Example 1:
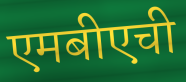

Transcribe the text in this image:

एमबीएची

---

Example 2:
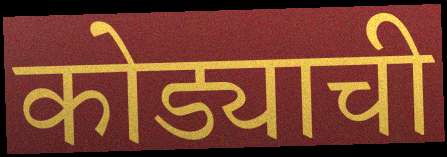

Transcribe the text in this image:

कोड्याची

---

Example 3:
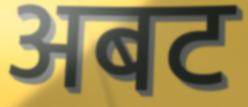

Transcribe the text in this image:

अबट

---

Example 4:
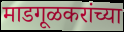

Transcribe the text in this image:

माडगूळकरांच्या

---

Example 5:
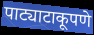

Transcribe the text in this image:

पाट्याटाकूपणे